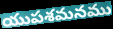
యుపశమనము